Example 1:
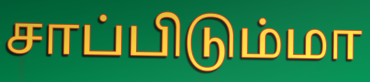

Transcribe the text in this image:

சாப்பிடும்மா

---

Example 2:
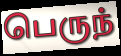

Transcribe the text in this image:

பெருந்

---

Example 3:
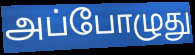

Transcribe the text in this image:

அப்போழுது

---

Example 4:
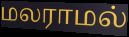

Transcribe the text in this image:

மலராமல்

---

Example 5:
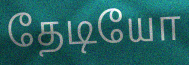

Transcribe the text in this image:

தேடியோ